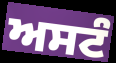
ਅਸਟੰ